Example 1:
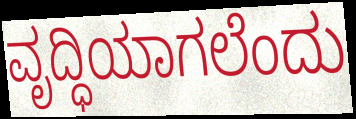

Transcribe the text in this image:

ವೃದ್ಧಿಯಾಗಲೆಂದು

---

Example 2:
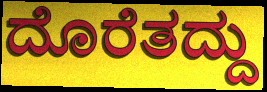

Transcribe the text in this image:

ದೊರೆತದ್ದು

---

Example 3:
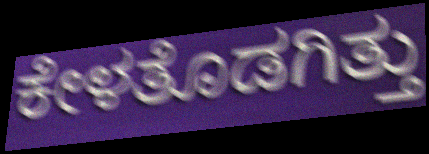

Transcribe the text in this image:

ಕೇಳತೊಡಗಿತ್ತು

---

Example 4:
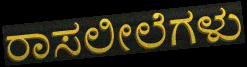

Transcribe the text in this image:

ರಾಸಲೀಲೆಗಳು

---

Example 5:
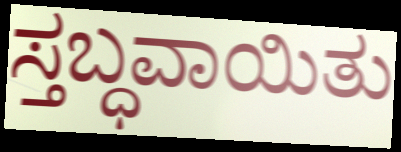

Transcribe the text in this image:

ಸ್ತಬ್ಧವಾಯಿತು